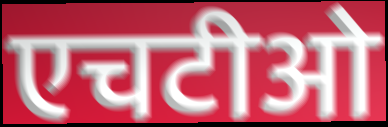
एचटीओ